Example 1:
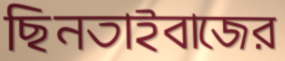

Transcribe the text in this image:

ছিনতাইবাজের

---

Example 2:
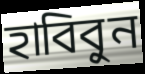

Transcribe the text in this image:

হাবিবুন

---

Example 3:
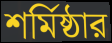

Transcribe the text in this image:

শর্মিষ্ঠার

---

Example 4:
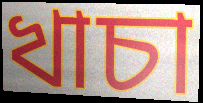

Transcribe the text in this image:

খাচা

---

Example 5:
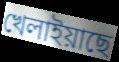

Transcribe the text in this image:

খেলাইয়াছে